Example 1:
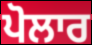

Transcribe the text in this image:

ਪੋਲਾਰ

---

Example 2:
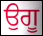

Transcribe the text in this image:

ਉਗੂ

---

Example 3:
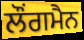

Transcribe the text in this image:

ਲੌਂਗਮੈਨ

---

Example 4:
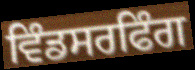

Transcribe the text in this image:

ਵਿੰਡਸਰਫਿੰਗ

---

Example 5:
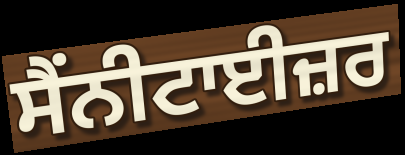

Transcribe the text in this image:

ਸੈਂਨੀਟਾਈਜ਼ਰ